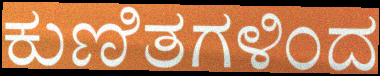
ಕುಣಿತಗಳಿಂದ